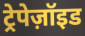
ट्रेपेज़ॉइड